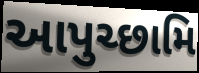
આપુચ્છામિ